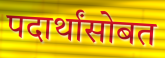
पदार्थांसोबत